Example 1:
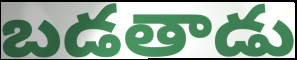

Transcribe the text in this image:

బడతాడు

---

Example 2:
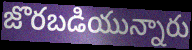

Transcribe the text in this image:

జొరబడియున్నారు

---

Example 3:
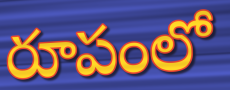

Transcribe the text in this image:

రూపంలో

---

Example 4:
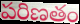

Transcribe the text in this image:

పరిణతం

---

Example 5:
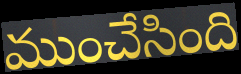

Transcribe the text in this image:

ముంచేసింది